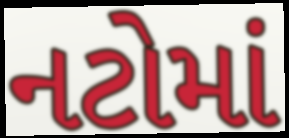
નટોમાં